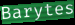
Barytes